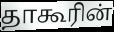
தாகூரின்